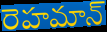
రెహమాన్